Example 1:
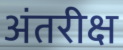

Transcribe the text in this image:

अंतरीक्ष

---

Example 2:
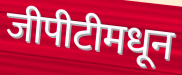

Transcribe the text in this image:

जीपीटीमधून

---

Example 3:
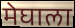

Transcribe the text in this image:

मेघाला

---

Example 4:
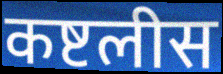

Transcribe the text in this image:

कष्टलीस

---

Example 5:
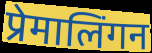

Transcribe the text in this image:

प्रेमालिंगन